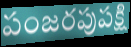
పంజరపుపక్షి